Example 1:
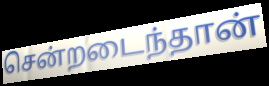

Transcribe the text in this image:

சென்றடைந்தான்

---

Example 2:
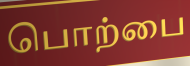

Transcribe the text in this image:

பொற்பை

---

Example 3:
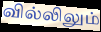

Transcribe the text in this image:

வில்லிலும்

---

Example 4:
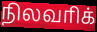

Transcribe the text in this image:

நிலவரிக்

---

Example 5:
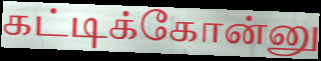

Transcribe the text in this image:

கட்டிக்கோன்னு